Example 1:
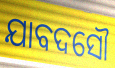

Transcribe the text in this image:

ଯାବଦସୌ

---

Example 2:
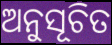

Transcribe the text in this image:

ଅନୁସୂଚିତ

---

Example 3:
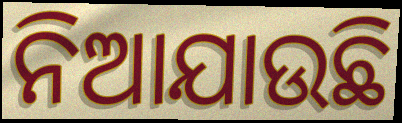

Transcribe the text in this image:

ନିଆଯାଉଛି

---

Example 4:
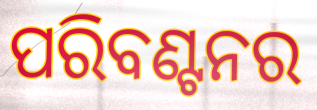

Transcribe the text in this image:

ପରିବଣ୍ଟନର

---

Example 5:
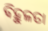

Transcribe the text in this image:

ବିହୁଳତା